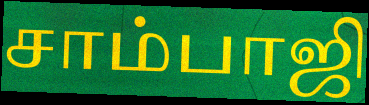
சாம்பாஜி